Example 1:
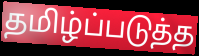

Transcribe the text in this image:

தமிழ்ப்படுத்த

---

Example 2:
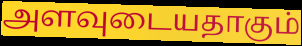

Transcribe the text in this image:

அளவுடையதாகும்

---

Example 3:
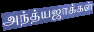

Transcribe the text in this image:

அந்த்யஜாக்கள்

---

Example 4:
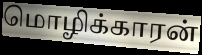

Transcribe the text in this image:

மொழிக்காரன்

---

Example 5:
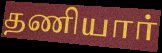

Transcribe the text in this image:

தணியார்